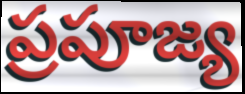
ప్రపూజ్య